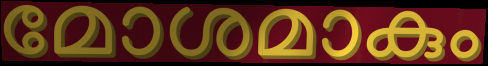
മോശമാകും